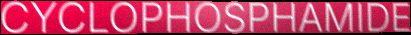
CYCLOPHOSPHAMIDE